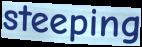
steeping